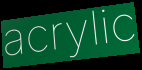
acrylic